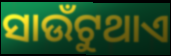
ସାଉଁଟୁଥାଏ